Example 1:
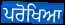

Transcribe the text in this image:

ਪਰੋਖਿਆ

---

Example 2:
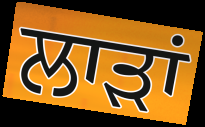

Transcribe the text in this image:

ਲਾੜਾਂ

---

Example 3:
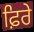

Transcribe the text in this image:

ਫ਼ਿਰੇ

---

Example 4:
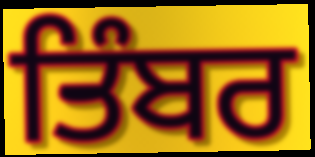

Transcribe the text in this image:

ਤਿੰਬਰ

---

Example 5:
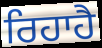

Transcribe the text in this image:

ਰਿਹਾਹੈ